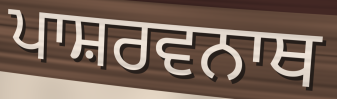
ਪਾਸ਼ਰਵਨਾਥ